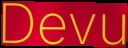
Devu